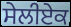
ਸੇਲੀਏਕ